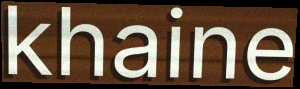
khaine